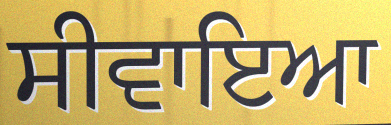
ਸੀਵਾਇਆ